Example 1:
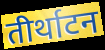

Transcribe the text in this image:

तीर्थाटन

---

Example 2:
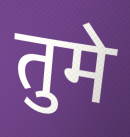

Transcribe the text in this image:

तुमे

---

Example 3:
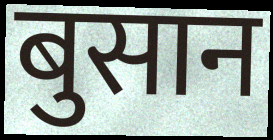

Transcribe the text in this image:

बुसान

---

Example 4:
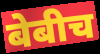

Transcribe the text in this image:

बेबीच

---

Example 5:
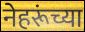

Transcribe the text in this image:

नेहरूंच्या